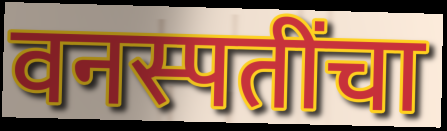
वनस्पतींचा